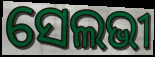
ସେଲଭୀ